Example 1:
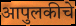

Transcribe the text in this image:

आपुलकीचे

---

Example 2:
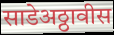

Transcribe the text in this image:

साडेअठ्ठावीस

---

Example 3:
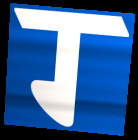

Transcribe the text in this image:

ग्‍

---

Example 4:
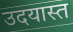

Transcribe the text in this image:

उदयास्त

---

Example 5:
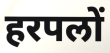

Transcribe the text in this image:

हरपलों